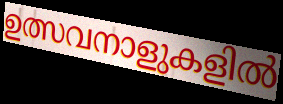
ഉത്സവനാളുകളിൽ